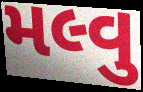
મલ્વુ